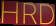
HRD